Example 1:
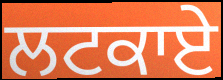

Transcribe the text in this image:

ਲਟਕਾਏ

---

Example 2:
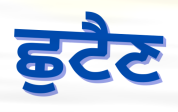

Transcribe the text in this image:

ਛੁਟੈਣ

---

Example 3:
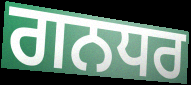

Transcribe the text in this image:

ਗਨਧਰ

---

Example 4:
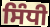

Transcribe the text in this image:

ਸਿੰਧੀ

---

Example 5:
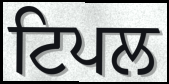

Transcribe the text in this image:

ਟਿਪਲ